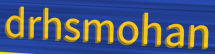
drhsmohan